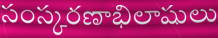
సంస్కరణాభిలాషులు